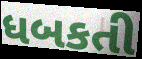
ધબકતી